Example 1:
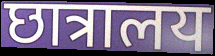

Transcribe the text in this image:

छात्रालय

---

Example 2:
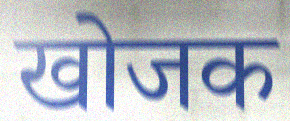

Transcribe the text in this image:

खोजक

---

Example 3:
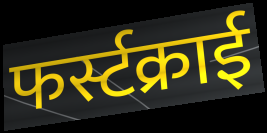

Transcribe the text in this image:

फर्स्टक्राई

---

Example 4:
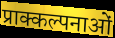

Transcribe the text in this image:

प्राक्कल्पनाओं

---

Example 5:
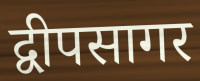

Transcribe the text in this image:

द्वीपसागर